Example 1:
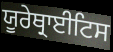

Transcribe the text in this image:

ਯੂਰੇਥ੍ਰਾਈਟਿਸ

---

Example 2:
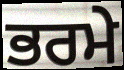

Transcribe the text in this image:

ਭਰਮੇ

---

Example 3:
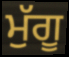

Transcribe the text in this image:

ਮੁੱਗੂ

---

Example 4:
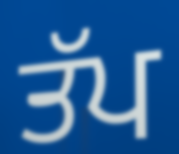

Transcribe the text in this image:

ਤੱਪ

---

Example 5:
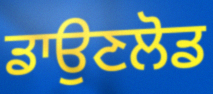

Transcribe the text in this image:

ਡਾਉਣਲੋਡ